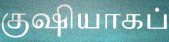
குஷியாகப்